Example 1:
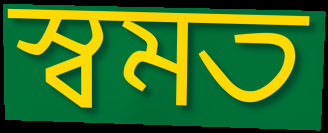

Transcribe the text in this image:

স্বমত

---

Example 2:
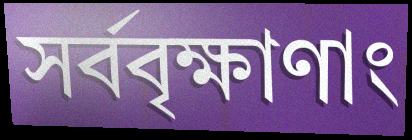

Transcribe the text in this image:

সর্ববৃক্ষাণাং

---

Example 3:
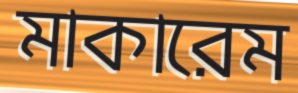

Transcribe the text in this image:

মাকারেম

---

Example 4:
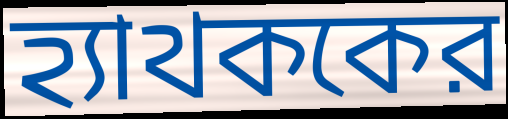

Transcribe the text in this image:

হ্যাথককের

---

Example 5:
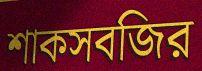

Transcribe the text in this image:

শাকসবজির